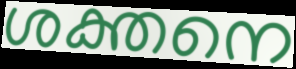
ശക്തനെ